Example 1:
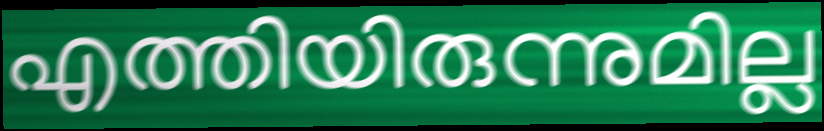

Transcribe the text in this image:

എത്തിയിരുന്നുമില്ല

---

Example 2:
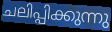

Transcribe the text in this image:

ചലിപ്പിക്കുന്നു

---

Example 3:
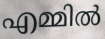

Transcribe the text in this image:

എമ്മിൽ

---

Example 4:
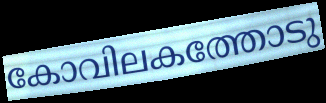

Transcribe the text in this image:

കോവിലകത്തോടു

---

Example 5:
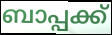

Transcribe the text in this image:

ബാപ്പക്ക്